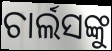
ଚାର୍ଲସଙ୍କୁ